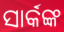
ସାର୍କଙ୍କ